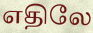
எதிலே